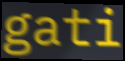
gati